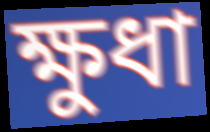
ক্ষুধা